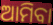
ଆମିବା